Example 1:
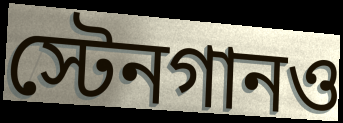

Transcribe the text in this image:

স্টেনগানও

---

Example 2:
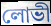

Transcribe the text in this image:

লোভী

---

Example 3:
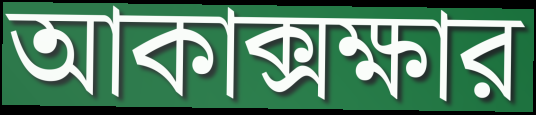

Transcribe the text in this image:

আকাক্সক্ষার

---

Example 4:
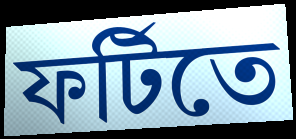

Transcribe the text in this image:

ফর্টিতে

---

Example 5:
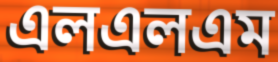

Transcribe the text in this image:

এলএলএম